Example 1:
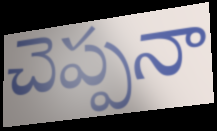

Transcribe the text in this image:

చెప్పనా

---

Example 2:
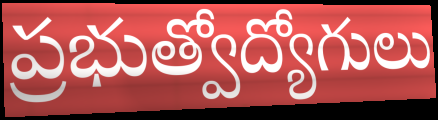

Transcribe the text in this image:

ప్రభుత్వోద్యోగులు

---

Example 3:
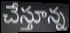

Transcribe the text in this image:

చేస్తూన్న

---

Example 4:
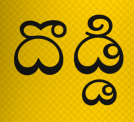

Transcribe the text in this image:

దొడ్డి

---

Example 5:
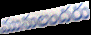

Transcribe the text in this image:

మునులందరు